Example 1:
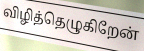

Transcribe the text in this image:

விழித்தெழுகிறேன்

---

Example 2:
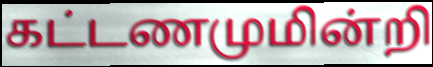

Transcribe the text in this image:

கட்டணமுமின்றி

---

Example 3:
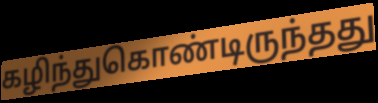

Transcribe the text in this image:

கழிந்துகொண்டிருந்தது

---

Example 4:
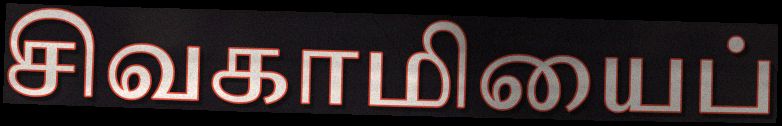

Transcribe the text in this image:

சிவகாமியைப்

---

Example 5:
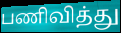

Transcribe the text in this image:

பணிவித்து